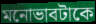
মনোভাবটাকে